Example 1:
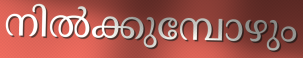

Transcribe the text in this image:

നിൽക്കുമ്പോഴും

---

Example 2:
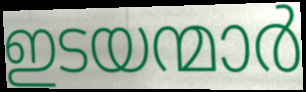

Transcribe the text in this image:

ഇടയന്മാർ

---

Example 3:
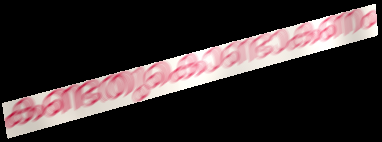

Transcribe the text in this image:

കണ്ടതുകൊണ്ടാകണം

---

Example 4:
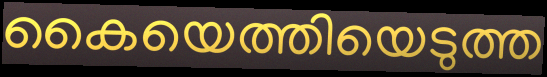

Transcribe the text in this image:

കൈയെത്തിയെടുത്ത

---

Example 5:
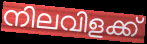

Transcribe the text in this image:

നിലവിളക്ക്